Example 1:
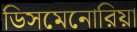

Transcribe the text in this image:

ডিসমেনোরিয়া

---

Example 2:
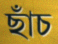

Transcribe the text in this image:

ছাঁচ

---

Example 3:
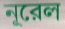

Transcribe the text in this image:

নূরেল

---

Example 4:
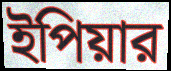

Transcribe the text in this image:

ইপিয়ার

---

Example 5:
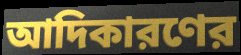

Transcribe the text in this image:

আদিকারণের